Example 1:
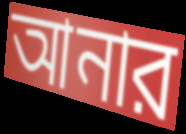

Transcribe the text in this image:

আনার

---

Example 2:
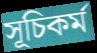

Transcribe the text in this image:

সূচিকর্ম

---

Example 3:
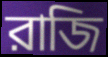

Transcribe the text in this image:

রাজি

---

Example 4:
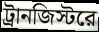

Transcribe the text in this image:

ট্রানজিস্টরে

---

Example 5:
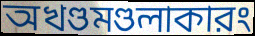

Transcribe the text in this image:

অখণ্ডমণ্ডলাকারং